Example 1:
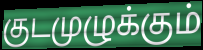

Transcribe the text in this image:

குடமுழுக்கும்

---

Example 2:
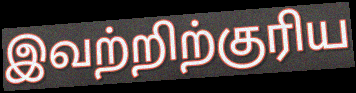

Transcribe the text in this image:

இவற்றிற்குரிய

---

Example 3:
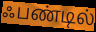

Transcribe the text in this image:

ஃபண்டில்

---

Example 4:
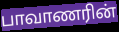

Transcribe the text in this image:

பாவாணரின்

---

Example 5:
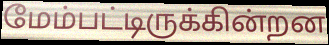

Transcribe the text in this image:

மேம்பட்டிருக்கின்றன